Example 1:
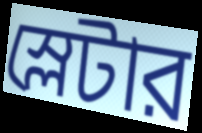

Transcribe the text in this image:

স্লেটার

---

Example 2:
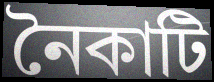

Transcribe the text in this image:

নৈকাটি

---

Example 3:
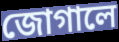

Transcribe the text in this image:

জোগালে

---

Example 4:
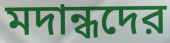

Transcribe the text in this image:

মদান্ধদের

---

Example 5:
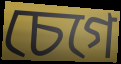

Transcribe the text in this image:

চেগে